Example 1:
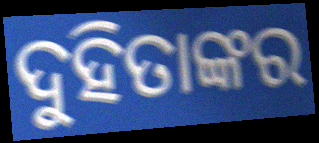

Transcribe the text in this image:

ଦୁହିତାଙ୍କର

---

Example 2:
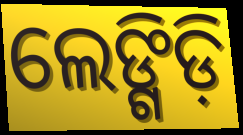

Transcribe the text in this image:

ଲେଙ୍ଗିଡ଼ି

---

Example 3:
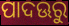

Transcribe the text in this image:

ପାଦଊରୁ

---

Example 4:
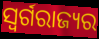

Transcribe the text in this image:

ସ୍ୱର୍ଗରାଜ୍ୟର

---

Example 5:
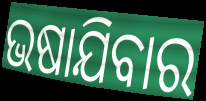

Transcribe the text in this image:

ଭଷାଯିବାର